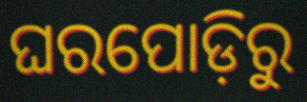
ଘରପୋଡ଼ିରୁ